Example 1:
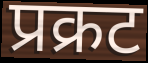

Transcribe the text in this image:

प्रक्रट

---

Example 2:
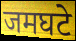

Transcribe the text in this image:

जमघटे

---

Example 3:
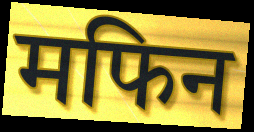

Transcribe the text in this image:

मफिन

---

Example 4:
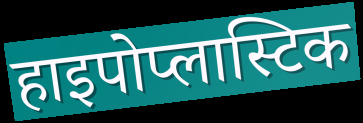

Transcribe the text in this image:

हाइपोप्लास्टिक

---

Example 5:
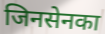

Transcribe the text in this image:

जिनसेनका